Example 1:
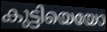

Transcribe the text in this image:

കുട്ടിയെയോ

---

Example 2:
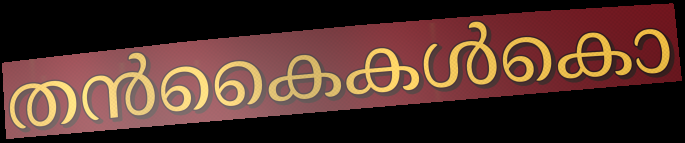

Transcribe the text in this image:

തൻകൈകൾകൊ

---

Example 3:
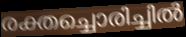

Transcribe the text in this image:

രക്തച്ചൊരിച്ചിൽ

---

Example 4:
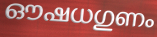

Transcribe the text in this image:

ഔഷധഗുണം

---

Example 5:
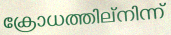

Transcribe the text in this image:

ക്രോധത്തില്നിന്ന്